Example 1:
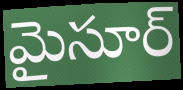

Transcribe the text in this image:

మైసూర్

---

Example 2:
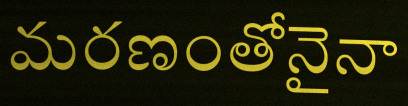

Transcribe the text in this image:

మరణంతోనైనా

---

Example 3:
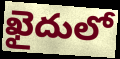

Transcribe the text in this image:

ఖైదులో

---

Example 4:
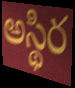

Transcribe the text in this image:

అస్థిర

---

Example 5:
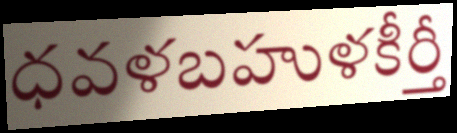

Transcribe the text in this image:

ధవళబహుళకీర్తీ